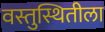
वस्तुस्थितीला